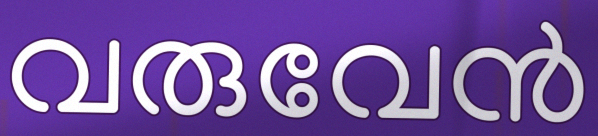
വരുവേൻ